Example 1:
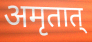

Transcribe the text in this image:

अमृतात्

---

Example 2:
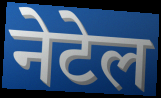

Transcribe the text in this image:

नेटेल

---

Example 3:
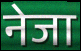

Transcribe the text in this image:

नेजा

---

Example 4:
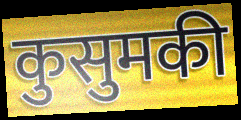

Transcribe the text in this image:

कुसुमकी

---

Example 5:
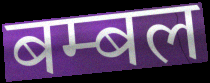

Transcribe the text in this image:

बम्बल